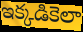
ఇక్కడికెలా